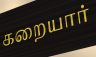
கறையார்